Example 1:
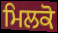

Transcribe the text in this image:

ਮਿਲਕੋ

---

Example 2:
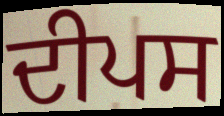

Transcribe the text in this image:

ਦੀਪਸ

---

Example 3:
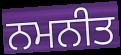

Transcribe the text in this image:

ਨਮਨੀਤ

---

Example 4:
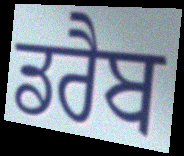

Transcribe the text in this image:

ਡਰੈਬ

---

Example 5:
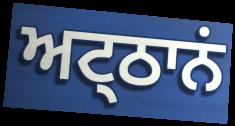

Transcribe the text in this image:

ਅਟ੍ਠਾਨਂ